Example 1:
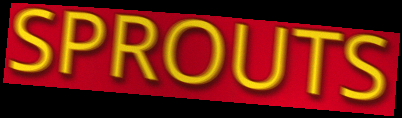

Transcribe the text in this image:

SPROUTS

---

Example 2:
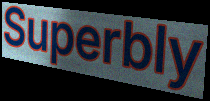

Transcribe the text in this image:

Superbly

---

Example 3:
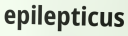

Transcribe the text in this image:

epilepticus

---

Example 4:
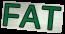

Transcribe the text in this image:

FAT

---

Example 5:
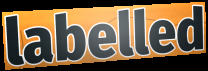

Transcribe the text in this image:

labelled